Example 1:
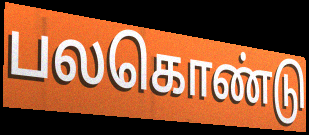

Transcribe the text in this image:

பலகொண்டு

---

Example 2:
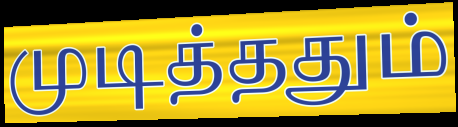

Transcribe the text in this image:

முடித்ததும்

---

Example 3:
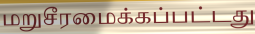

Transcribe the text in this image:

மறுசீரமைக்கப்பட்டது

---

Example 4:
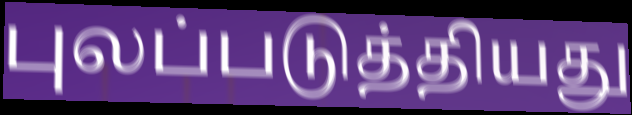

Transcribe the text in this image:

புலப்படுத்தியது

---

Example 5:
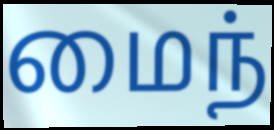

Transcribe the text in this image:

மைந்